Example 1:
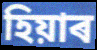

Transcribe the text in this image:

হিয়াৰ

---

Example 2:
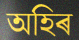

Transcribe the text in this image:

অহিৰ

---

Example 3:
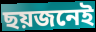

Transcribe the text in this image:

ছয়জনেই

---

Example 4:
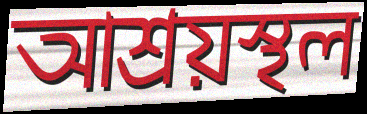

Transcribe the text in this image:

আশ্ৰয়স্থল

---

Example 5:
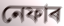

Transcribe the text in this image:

নেফাৰ